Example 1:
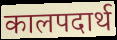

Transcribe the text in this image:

कालपदार्थ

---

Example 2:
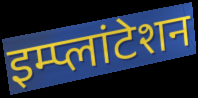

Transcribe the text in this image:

इम्प्लांटेशन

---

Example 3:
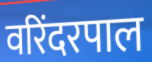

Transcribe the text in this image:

वरिंदरपाल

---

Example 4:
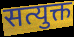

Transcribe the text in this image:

सत्युक्त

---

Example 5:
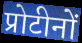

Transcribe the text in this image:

प्रोटीनों